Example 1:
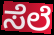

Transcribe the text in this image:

ಸೆಲೆ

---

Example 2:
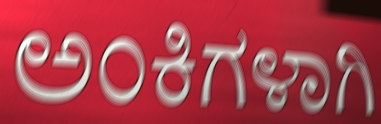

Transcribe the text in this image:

ಅಂಕಿಗಳಾಗಿ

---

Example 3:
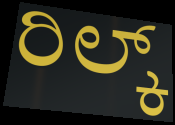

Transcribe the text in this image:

ರಿಲ್ಕ್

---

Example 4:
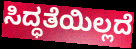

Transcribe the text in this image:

ಸಿದ್ಧತೆಯಿಲ್ಲದೆ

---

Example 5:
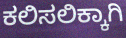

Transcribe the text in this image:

ಕಲಿಸಲಿಕ್ಕಾಗಿ